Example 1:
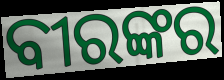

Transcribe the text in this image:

ବୀରଙ୍କର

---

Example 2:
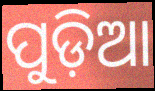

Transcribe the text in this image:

ପୁଡ଼ିଆ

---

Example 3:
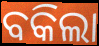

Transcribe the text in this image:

ବକିଲା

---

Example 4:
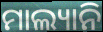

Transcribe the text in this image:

ମାଲ୍ୟାନି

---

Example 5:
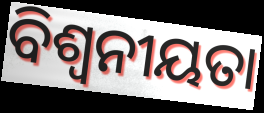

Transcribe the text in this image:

ବିଶ୍ୱନୀୟତା